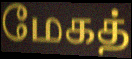
மேகத்